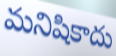
మనిషికాదు